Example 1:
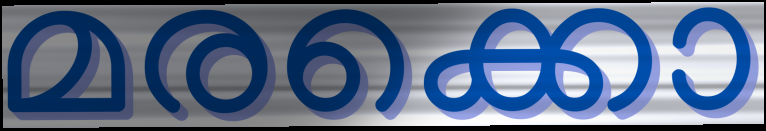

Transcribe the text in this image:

മരക്കൊ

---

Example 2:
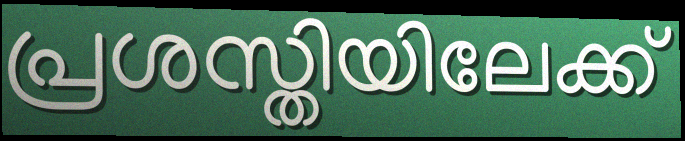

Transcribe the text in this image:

പ്രശസ്തിയിലേക്ക്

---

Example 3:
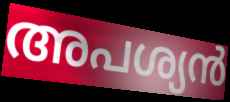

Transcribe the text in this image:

അപശ്യൻ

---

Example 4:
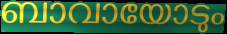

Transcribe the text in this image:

ബാവായോടും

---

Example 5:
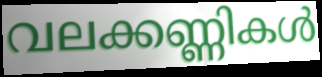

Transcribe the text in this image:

വലക്കണ്ണികൾ